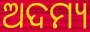
ଅଦମ୍ୟ